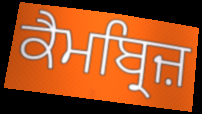
ਕੈਮਬ੍ਰਿਜ਼